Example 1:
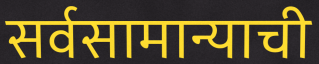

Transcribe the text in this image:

सर्वसामान्याची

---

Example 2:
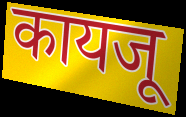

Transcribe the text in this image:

कायजू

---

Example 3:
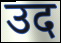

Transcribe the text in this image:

उद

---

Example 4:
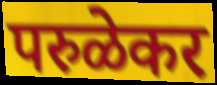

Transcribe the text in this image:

परुळेकर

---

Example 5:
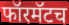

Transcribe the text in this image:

फॉरमॅटच